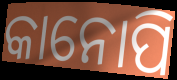
କାନୋପି